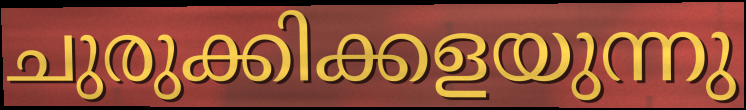
ചുരുക്കിക്കളയുന്നു